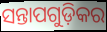
ସନ୍ତାପଗୁଡ଼ିକର